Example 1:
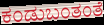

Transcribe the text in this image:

ಕಂಡುಬಂತಂತೆ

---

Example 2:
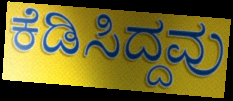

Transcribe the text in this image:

ಕೆಡಿಸಿದ್ದವು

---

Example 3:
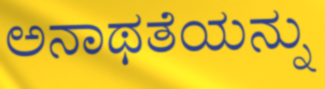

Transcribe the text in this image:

ಅನಾಥತೆಯನ್ನು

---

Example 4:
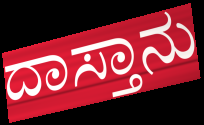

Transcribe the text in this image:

ದಾಸ್ತಾನು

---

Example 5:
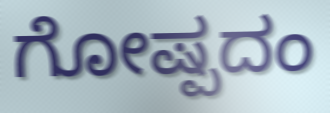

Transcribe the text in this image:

ಗೋಷ್ಪದಂ